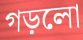
গড়লো